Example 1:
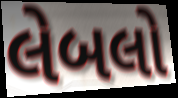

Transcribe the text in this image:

લેબલો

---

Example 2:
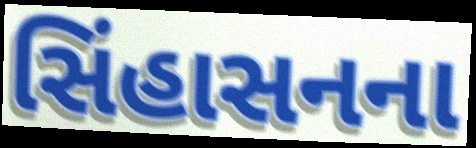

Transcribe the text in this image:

સિંહાસનના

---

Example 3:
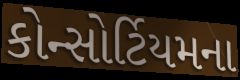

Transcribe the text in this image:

કોન્સોર્ટિયમના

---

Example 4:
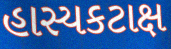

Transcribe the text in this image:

હાસ્યકટાક્ષ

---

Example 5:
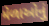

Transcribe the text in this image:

મેળાઓનું